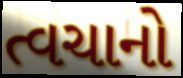
ત્વચાનો